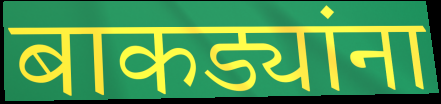
बाकड्यांना